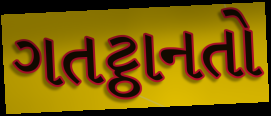
ગતટ્ઠાનતો